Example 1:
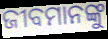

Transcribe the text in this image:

ଜୀବମାନଙ୍କୁ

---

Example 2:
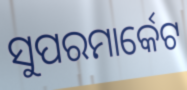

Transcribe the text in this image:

ସୁପରମାର୍କେଟ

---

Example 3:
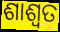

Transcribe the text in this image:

ଶାଶ୍ଵତ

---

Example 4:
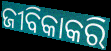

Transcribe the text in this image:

ଜୀବିକାକରି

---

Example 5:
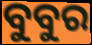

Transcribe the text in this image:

ବୁବୁର